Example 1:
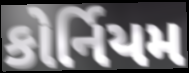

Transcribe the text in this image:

કોર્નિયમ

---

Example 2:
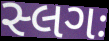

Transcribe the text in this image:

સ્લગઃ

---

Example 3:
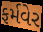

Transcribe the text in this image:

ફર્મવેર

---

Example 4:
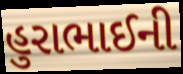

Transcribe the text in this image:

હુરાભાઈની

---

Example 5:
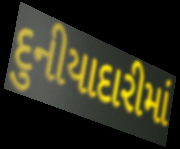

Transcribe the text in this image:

દુનીયાદારીમાં